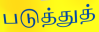
படுத்துத்